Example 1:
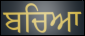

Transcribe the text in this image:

ਬਚਿਆ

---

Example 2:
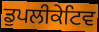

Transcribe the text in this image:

ਡੁਪਲੀਕੇਟਿਵ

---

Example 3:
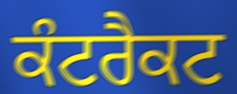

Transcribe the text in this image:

ਕੰਟਰੈਕਟ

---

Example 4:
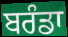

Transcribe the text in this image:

ਬਰੰਡਾ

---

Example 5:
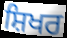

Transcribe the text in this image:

ਸ਼ਿਖਰ